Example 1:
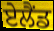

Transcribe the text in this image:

ਏਲੈਂਡ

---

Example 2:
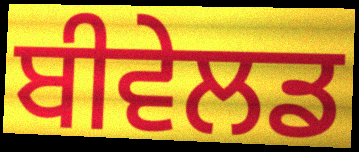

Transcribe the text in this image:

ਬੀਵੇਲਡ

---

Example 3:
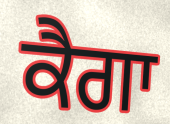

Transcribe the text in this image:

ਕੈਗਾ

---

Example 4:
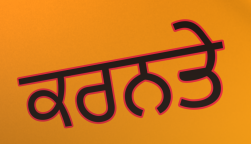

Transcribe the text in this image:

ਕਰਨਤੇ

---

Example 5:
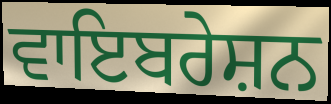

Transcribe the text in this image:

ਵਾਇਬਰੇਸ਼ਨ